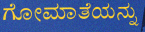
ಗೋಮಾತೆಯನ್ನು